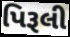
પિરૂલી